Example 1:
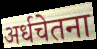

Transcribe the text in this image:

अर्धचेतना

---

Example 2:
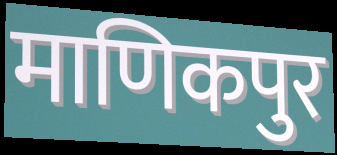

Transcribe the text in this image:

माणिकपुर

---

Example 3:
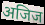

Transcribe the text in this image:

अजिज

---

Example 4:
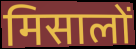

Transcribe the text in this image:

मिसालों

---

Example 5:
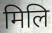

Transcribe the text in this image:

मिलि